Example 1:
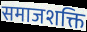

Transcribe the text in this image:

समाजशक्ति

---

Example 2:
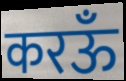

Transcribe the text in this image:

करऊँ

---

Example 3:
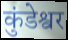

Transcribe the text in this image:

कुंडेश्वर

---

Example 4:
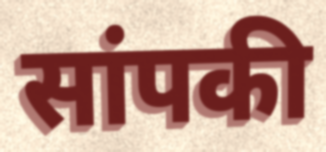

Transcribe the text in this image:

सांपकी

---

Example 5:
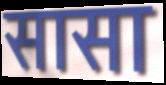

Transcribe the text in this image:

सासा